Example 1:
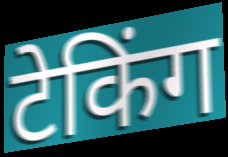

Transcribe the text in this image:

टेकिंग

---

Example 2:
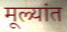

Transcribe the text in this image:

मूल्यांत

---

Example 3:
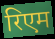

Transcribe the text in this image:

रिएम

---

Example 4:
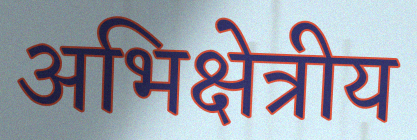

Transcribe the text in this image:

अभिक्षेत्रीय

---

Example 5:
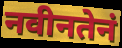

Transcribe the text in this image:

नवीनतेनं